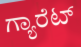
ಗ್ಯಾರೆಟ್